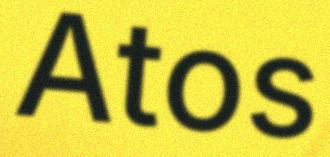
Atos